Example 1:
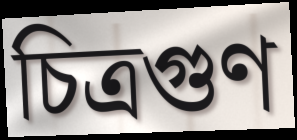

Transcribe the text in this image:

চিত্রগুণ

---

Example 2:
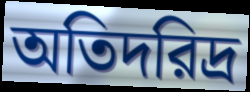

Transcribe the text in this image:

অতিদরিদ্র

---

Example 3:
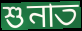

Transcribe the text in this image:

শুনাত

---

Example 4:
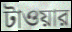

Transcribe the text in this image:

টাওয়ার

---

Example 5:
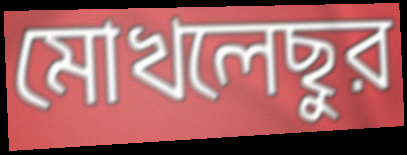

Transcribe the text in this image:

মোখলেছুর